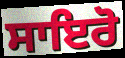
ਸਾਇਰੋ